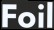
Foil